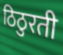
ठिठुरती